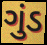
ગુંડ